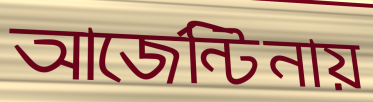
আর্জেন্টিনায়